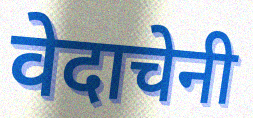
वेदाचेनी